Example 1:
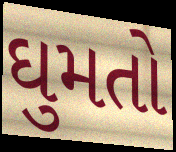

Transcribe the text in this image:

ઘુમતો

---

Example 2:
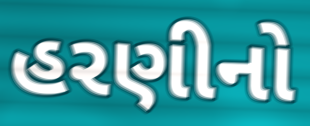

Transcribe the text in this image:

હરણીનો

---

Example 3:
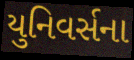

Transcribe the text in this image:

યુનિવર્સના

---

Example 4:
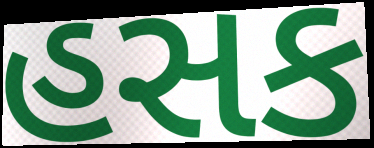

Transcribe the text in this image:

હસક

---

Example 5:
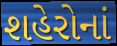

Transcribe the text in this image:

શહેરોનાં